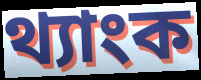
থ্যাংক